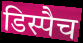
डिस्‍पैच